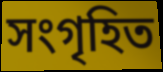
সংগৃহিত